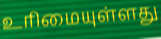
உரிமையுள்ளது